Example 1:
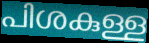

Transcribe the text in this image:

പിശകുള്ള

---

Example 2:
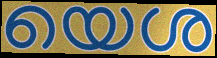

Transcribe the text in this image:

യെശ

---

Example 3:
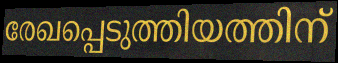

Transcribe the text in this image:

രേഖപ്പെടുത്തിയത്തിന്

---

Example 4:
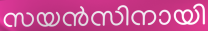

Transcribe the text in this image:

സയൻസിനായി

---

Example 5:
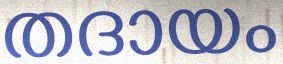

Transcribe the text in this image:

തദായം